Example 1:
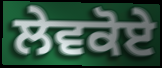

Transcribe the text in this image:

ਲੇਵਕੋਏ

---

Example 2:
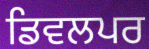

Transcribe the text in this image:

ਡਿਵਲਪਰ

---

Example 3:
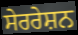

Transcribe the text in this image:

ਸੇਰਰੇਸ਼ਨ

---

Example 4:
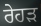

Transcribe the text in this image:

ਰੇਹੜ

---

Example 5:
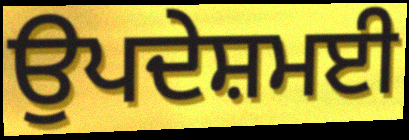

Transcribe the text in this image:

ਉਪਦੇਸ਼ਮਈ